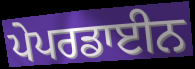
ਪੇਪਰਡਾਈਨ